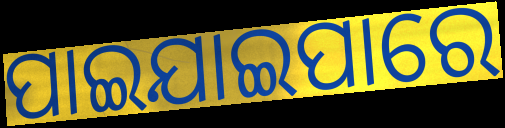
ପାଇଯାଇପାରେ